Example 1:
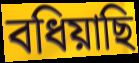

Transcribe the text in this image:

বধিয়াছি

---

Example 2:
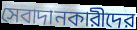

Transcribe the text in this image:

সেবাদানকারীদের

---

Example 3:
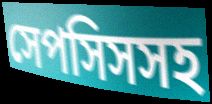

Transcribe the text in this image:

সেপসিসসহ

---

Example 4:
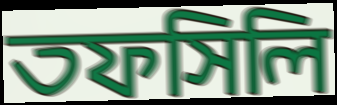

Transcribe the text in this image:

তফসিলি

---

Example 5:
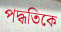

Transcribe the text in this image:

পদ্ধতিকে